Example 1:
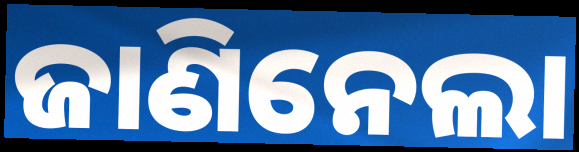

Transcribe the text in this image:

ଜାଣିନେଲା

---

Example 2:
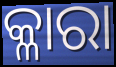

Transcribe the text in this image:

କ୍ଳାରା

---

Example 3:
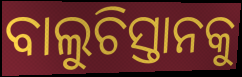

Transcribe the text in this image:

ବାଲୁଚିସ୍ତାନକୁ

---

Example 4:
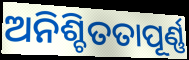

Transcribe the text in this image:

ଅନିଶ୍ଚିତତାପୂର୍ଣ୍ଣ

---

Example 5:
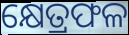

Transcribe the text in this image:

କ୍ଷେତ୍ରଫଳ